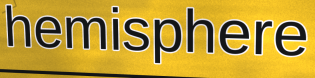
hemisphere